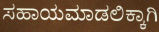
ಸಹಾಯಮಾಡಲಿಕ್ಕಾಗಿ